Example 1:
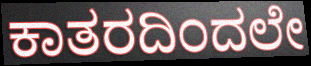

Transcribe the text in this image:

ಕಾತರದಿಂದಲೇ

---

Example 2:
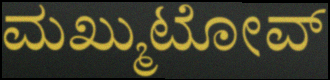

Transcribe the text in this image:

ಮಖ್ಮುಟೋವ್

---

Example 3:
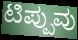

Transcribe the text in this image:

ಟಿಪ್ಪುವು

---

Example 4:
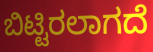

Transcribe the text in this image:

ಬಿಟ್ಟಿರಲಾಗದೆ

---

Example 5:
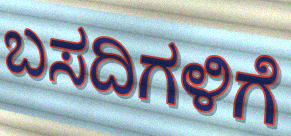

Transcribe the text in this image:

ಬಸದಿಗಳಿಗೆ